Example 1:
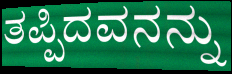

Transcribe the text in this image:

ತಪ್ಪಿದವನನ್ನು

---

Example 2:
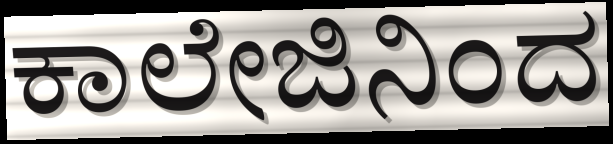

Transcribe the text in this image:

ಕಾಲೇಜಿನಿಂದ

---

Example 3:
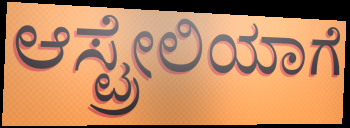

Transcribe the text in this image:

ಆಸ್ಟ್ರೇಲಿಯಾಗೆ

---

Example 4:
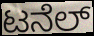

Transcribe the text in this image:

ಟನೆಲ್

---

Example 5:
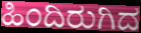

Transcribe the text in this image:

ಹಿಂದಿರುಗಿದ